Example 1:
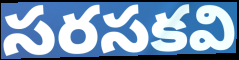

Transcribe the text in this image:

సరసకవి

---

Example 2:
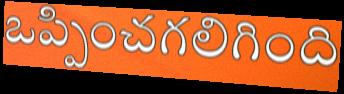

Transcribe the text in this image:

ఒప్పించగలిగింది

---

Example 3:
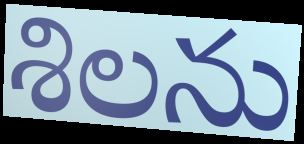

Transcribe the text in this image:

శిలను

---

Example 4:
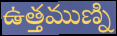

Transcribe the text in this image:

ఉత్తముణ్ని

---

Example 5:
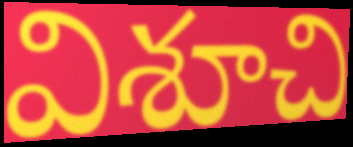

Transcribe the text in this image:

విశూచి